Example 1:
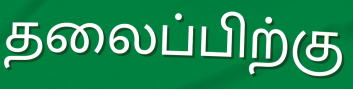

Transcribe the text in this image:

தலைப்பிற்கு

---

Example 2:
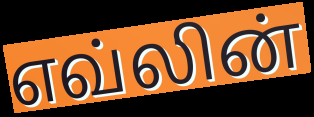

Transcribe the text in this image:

எவ்லின்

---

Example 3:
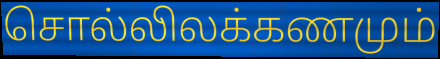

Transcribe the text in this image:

சொல்லிலக்கணமும்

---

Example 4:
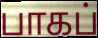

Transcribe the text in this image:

பாகப்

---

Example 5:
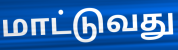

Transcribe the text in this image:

மாட்டுவது